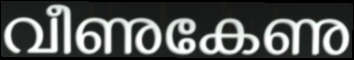
വീണുകേണു